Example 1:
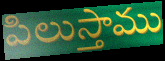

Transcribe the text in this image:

పిలుస్తాము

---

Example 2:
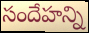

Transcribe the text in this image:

సందేహన్ని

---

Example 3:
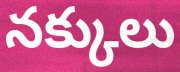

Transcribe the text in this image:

నక్కులు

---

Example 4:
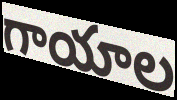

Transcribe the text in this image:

గాయాల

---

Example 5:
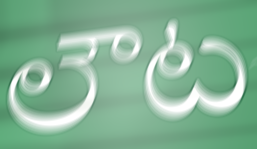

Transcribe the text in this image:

లౌట